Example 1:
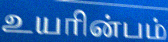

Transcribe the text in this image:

உயரின்பம்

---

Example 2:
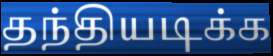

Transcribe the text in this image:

தந்தியடிக்க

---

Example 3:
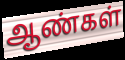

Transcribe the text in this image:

ஆண்கள்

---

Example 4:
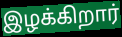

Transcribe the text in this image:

இழக்கிறார்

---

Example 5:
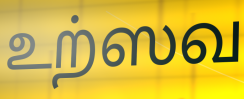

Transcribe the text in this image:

உற்ஸவ